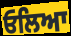
ਓਲਿਆ